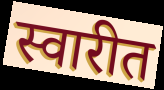
स्वारीत